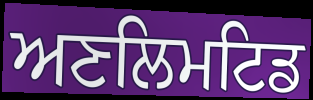
ਅਣਲਿਮਟਿਡ